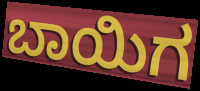
ಬಾಯಿಗ